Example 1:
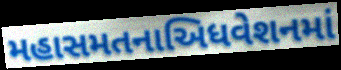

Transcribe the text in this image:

મહાસમતનાઅિધવેશનમાં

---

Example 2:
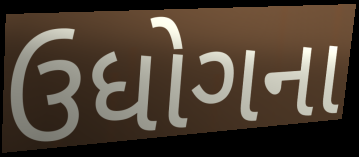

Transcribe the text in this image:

ઉધોગના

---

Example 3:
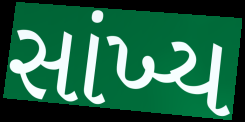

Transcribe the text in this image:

સાંખ્ય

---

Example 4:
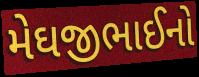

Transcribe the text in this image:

મેઘજીભાઈનો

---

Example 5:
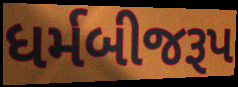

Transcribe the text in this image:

ધર્મબીજરૂપ